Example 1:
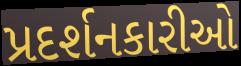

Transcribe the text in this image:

પ્રદર્શનકારીઓ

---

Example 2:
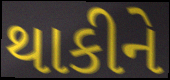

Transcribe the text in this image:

થાકીને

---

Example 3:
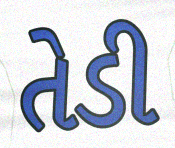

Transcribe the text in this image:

તેડી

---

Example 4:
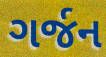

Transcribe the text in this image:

ગર્જન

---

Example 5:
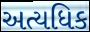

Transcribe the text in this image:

અત્યધિક